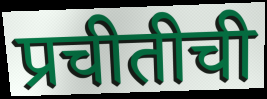
प्रचीतीची